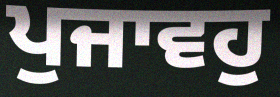
ਪੁਜਾਵਹੁ